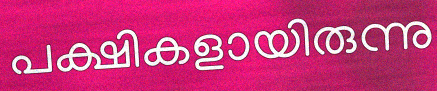
പക്ഷികളായിരുന്നു